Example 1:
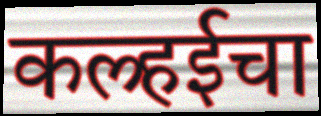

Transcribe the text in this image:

कल्हईचा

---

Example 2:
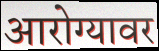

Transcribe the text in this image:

आरोग्यावर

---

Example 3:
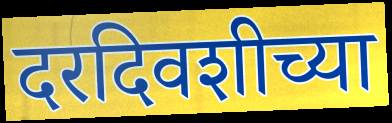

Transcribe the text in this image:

दरदिवशीच्या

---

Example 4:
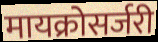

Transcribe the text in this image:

मायक्रोसर्जरी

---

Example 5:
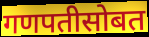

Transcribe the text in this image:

गणपतीसोबत